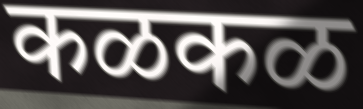
कळकळ